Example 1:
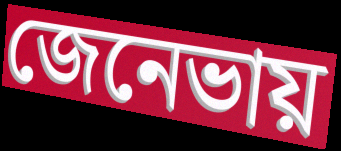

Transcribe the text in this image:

জেনেভায়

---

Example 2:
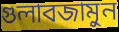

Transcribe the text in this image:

গুলাবজামুন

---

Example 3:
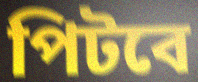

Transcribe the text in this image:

পিটবে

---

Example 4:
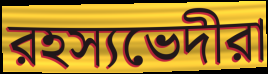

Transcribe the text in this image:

রহস্যভেদীরা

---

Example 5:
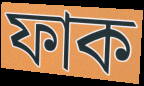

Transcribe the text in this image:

ফাক